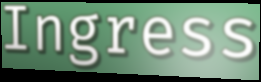
Ingress